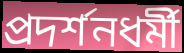
প্রদর্শনধর্মী